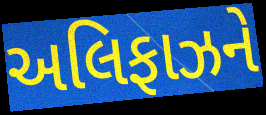
અલિફાઝને